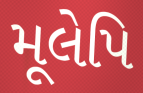
મૂલેપિ